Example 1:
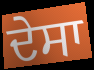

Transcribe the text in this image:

ਦੇਸਾ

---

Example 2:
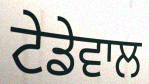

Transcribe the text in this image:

ਟੇਡੇਵਾਲ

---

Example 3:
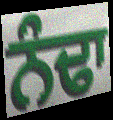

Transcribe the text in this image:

ਨੰਢਾ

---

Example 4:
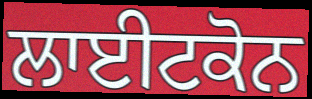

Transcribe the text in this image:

ਲਾਈਟਕੋਨ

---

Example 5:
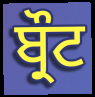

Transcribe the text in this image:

ਬ੍ਰੌਟ